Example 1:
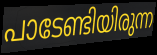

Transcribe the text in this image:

പാടേണ്ടിയിരുന്ന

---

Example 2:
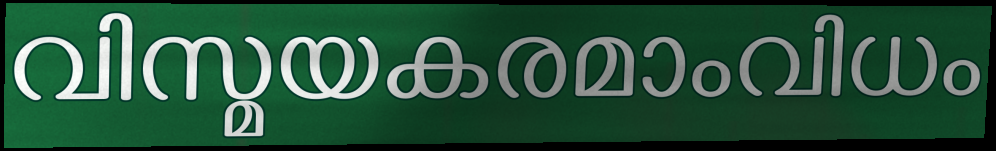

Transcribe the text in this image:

വിസ്മയകരമാംവിധം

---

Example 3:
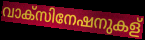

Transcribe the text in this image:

വാക്സിനേഷനുകള്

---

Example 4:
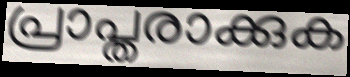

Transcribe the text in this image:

പ്രാപ്തരാക്കുക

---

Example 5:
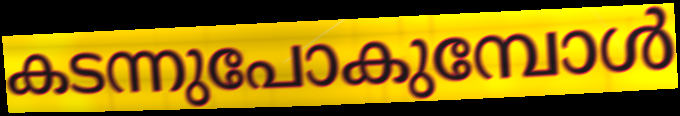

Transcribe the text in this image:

കടന്നുപോകുമ്പോൾ